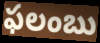
ఫలంబు